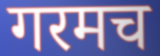
गरमच